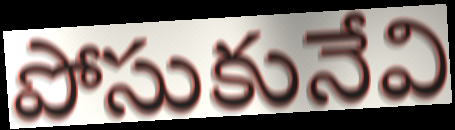
పోసుకునేవి